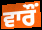
ਵਾਰੌਂ